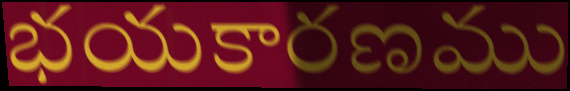
భయకారణము